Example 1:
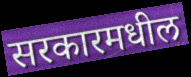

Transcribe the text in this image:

सरकारमधील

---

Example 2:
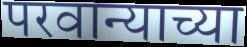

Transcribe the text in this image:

परवान्याच्या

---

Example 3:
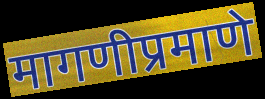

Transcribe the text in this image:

मागणीप्रमाणे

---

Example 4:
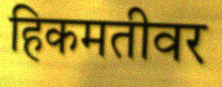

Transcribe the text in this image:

हिकमतीवर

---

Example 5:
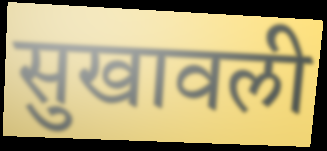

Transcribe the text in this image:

सुखावली